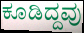
ಕೂಡಿದ್ದವು